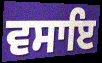
ਵਸਾਇ